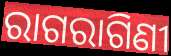
ରାଗରାଗିଣୀ